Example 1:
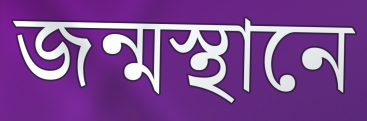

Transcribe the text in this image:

জন্মস্থানে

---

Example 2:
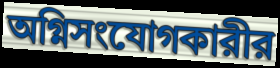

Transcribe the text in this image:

অগ্নিসংযোগকারীর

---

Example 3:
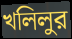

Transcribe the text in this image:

খলিলুর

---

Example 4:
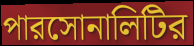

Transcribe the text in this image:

পারসোনালিটির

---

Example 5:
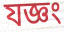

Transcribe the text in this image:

যজ্ঞং